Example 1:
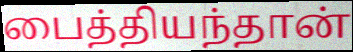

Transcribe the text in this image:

பைத்தியந்தான்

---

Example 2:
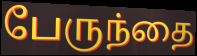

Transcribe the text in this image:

பேருந்தை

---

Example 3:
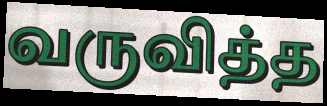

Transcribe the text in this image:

வருவித்த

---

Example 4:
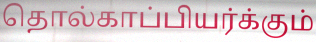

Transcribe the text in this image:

தொல்காப்பியர்க்கும்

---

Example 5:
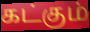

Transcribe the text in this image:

கட்கும்